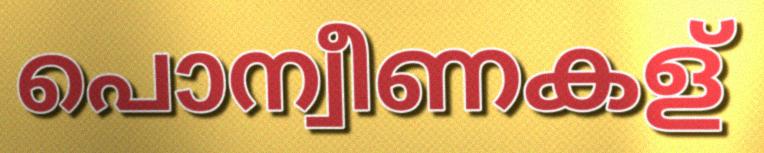
പൊന്വീണകള്